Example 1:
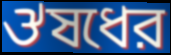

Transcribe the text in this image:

ঔষধের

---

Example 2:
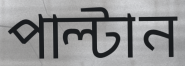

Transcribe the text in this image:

পাল্টান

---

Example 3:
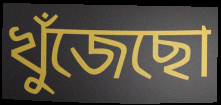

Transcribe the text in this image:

খুঁজেছো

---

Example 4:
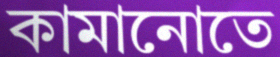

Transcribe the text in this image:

কামানোতে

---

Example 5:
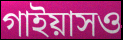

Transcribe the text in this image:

গাইয়াসও